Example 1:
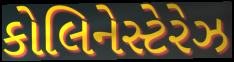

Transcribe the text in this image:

કોલિનેસ્ટેરેઝ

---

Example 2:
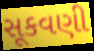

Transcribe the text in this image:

સૂકવણી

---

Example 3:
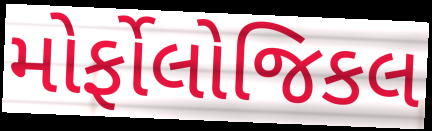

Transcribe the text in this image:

મોર્ફોલોજિકલ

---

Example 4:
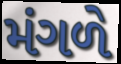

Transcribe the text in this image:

મંગળે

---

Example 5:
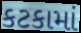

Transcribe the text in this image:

કટકામાં